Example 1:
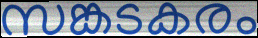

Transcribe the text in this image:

സങ്കടകരം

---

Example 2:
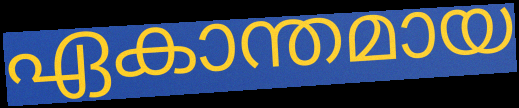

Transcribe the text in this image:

ഏകാന്തമായ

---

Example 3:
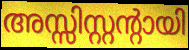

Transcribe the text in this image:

അസ്സിസ്റ്റന്റായി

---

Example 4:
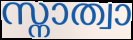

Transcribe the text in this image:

സ്നാത്വാ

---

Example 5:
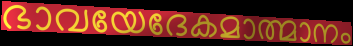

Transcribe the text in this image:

ഭാവയേദേകമാത്മാനം